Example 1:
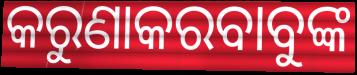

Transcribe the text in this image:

କରୁଣାକରବାବୁଙ୍କ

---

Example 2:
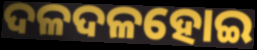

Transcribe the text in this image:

ଦଳଦଳହୋଇ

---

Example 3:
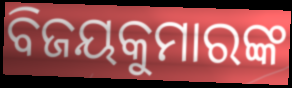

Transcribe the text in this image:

ବିଜୟକୁମାରଙ୍କ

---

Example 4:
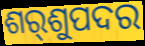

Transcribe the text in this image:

ଶର୍‌ଶୁପଦର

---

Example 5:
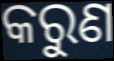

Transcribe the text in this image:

କରୁଣ